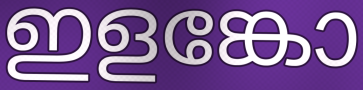
ഇളങ്കോ